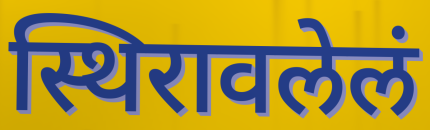
स्थिरावलेलं